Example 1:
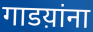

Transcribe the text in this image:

गाडय़ांना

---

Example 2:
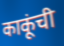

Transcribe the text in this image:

काकूंची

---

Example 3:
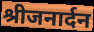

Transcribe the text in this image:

श्रीजनार्दन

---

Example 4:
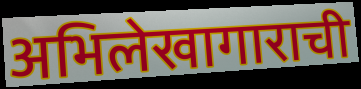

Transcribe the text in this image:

अभिलेखागाराची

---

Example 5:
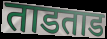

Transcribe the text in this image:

ताडताड